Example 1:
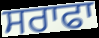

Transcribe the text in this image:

ਸਰਾਫਾ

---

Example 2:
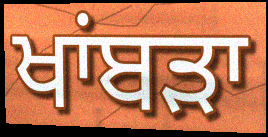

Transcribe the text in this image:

ਖਾਂਬੜਾ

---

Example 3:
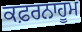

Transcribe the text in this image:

ਕਫ਼ਰਨਾਹੂਮ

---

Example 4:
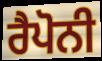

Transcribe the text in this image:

ਰੈਪੋਨੀ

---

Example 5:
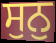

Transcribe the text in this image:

ਸੁਨੁ